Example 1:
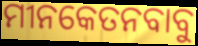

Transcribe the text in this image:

ମୀନକେତନବାବୁ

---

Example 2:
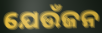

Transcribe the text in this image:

ଯେଉଁଜନ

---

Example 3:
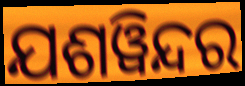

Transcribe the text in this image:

ଯଶୱିନ୍ଦର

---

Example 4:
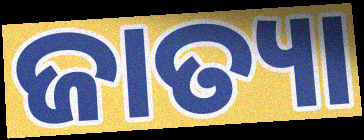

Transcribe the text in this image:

ଜାତ୍ୟା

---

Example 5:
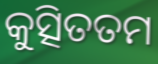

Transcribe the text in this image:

କୁତ୍ସିତତମ